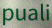
puali